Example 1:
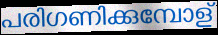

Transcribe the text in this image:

പരിഗണിക്കുമ്പോള്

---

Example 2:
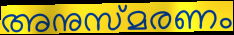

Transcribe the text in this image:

അനുസ്മരണം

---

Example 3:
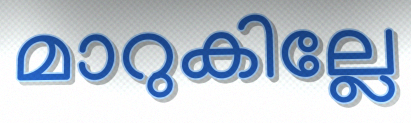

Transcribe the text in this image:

മാറുകില്ലേ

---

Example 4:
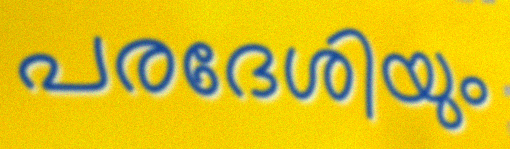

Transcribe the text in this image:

പരദേശിയും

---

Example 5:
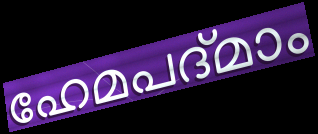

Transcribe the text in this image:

ഹേമപദ്മാം